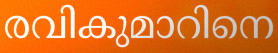
രവികുമാറിനെ